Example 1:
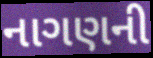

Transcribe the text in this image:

નાગણની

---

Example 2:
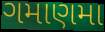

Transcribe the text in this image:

ગમાણમા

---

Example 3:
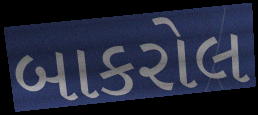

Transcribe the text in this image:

બાકરોલ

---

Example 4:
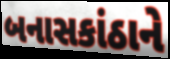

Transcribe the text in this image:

બનાસકાંઠાને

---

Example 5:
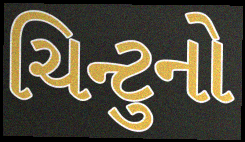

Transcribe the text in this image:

ચિન્ટુનો